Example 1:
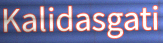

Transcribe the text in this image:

Kalidasgati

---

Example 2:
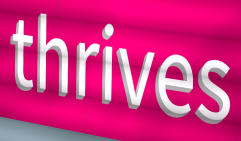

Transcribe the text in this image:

thrives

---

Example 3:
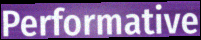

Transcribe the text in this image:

Performative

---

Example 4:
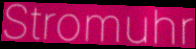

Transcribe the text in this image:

Stromuhr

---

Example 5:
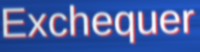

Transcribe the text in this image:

Exchequer